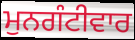
ਮੁਨਗੰਟੀਵਾਰ